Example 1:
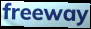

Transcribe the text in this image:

freeway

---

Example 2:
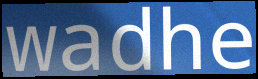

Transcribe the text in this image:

wadhe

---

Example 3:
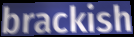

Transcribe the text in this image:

brackish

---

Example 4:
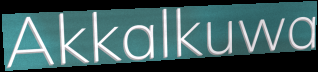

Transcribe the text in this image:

Akkalkuwa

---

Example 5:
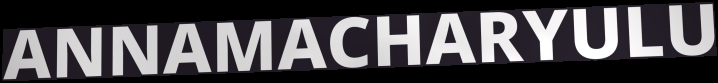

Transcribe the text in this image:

ANNAMACHARYULU